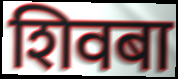
शिवबा